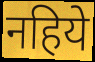
नहिये